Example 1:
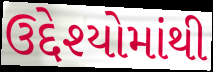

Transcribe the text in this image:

ઉદ્દેશ્યોમાંથી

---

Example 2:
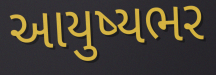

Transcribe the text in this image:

આયુષ્યભર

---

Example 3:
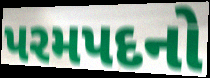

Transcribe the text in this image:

પરમપદનો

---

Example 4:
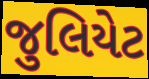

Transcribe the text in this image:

જુલિયેટ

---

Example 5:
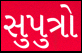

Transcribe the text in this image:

સુપુત્રો